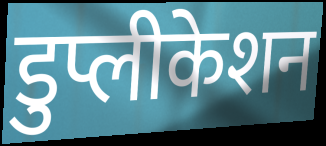
डुप्लीकेशन